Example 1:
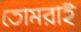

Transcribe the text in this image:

তোমরাই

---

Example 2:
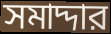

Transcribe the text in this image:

সমাদ্দার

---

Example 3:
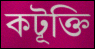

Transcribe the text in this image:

কটূক্তি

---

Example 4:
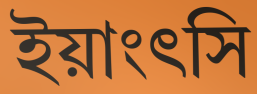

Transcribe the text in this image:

ইয়াংৎসি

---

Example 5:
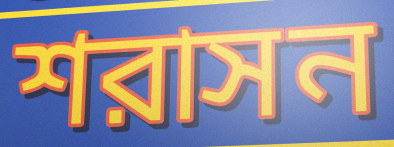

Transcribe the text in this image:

শরাসন